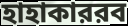
হাহাকাররব